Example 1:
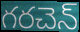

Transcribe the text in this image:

గరచెన్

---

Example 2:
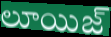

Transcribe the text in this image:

లూయిజ్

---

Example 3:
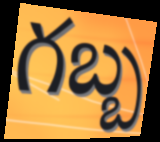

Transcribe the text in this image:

గబ్బ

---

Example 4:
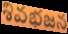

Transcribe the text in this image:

శివభజన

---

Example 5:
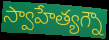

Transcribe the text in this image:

స్వాహేత్యగ్నౌ